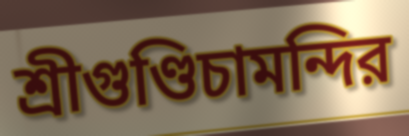
শ্রীগুণ্ডিচামন্দির